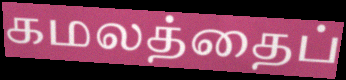
கமலத்தைப்